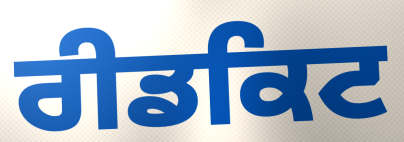
ਰੀਡਕਿਟ